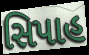
સિપાહ